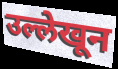
उल्लेखून